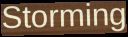
Storming